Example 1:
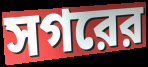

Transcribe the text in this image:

সগরের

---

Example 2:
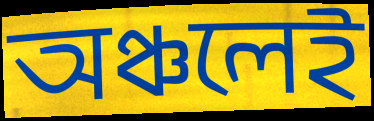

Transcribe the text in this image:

অঞ্চলেই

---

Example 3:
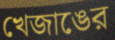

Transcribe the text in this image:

খেজাঙের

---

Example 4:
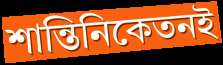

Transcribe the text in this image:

শান্তিনিকেতনই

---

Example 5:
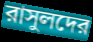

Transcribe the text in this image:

রাসুলদের